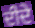
ਦੀਦੇ